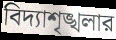
বিদ্যাশৃঙ্খলার